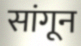
सांगून